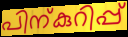
പിന്കുറിപ്പ്